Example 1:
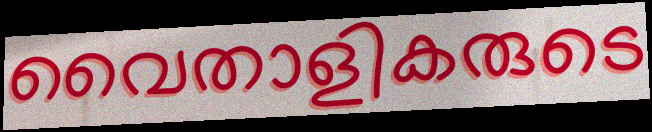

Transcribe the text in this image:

വൈതാളികരുടെ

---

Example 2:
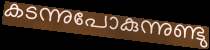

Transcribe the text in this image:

കടന്നുപോകുന്നുണ്ടു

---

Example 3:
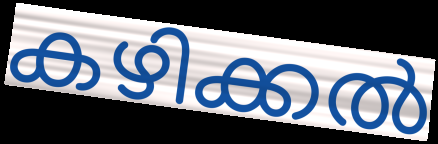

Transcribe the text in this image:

കഴിക്കൽ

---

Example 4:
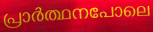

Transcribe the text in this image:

പ്രാർത്ഥനപോലെ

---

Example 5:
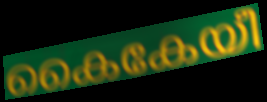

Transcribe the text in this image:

കൈകേയീ